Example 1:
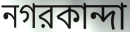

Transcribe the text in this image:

নগরকান্দা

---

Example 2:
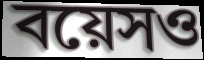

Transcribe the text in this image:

বয়েসও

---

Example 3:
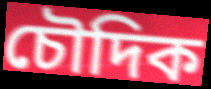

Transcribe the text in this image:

চৌদিক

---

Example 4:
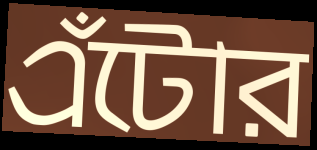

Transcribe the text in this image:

এঁটোর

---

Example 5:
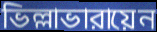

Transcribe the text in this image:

ভিল্লাভারায়েন